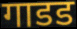
गाडड